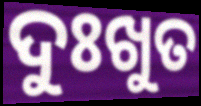
ଦୁଃଖୁତ